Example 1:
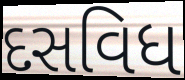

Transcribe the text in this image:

દસવિધ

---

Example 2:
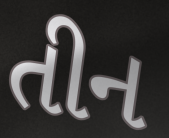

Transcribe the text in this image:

તીન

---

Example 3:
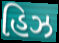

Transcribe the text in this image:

હિઝ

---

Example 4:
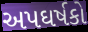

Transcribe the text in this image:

અપઘર્ષકો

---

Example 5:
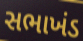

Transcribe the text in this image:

સભાખંડ